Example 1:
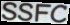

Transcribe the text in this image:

SSFC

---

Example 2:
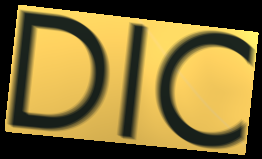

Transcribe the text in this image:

DIC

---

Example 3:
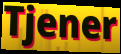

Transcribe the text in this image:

Tjener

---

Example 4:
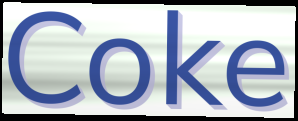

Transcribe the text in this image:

Coke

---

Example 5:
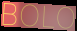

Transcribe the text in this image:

BOLO